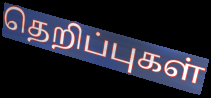
தெறிப்புகள்